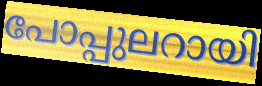
പോപ്പുലറായി